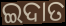
ଇଦାତ